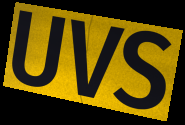
UVS